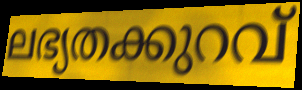
ലഭ്യതക്കുറവ്